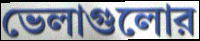
ভেলাগুলোর